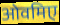
ओवमिए